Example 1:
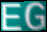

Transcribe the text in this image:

EG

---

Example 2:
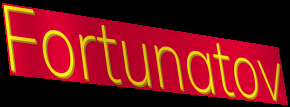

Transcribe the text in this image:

Fortunatov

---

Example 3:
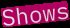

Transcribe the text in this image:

Shows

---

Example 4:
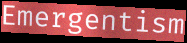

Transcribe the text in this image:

Emergentism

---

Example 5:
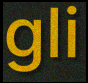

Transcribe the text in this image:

gli